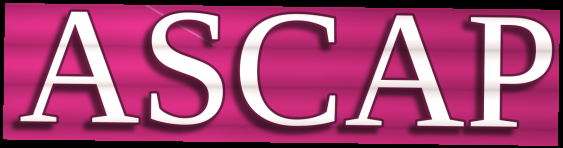
ASCAP